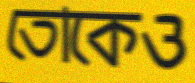
তোকেও